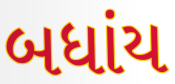
બધાંય